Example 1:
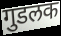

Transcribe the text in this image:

गुडलक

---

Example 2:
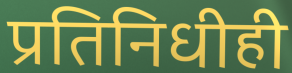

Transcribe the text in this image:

प्रतिनिधीही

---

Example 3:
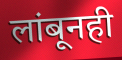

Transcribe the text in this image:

लांबूनही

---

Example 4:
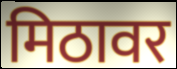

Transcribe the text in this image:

मिठावर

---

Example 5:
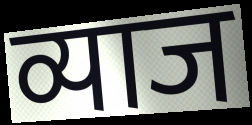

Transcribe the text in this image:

व्याज